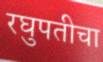
रघुपतीचा